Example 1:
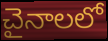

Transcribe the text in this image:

చైనాలలో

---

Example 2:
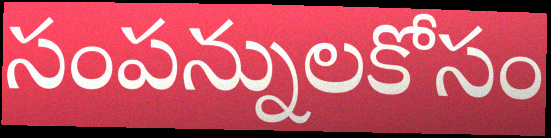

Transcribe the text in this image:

సంపన్నులకోసం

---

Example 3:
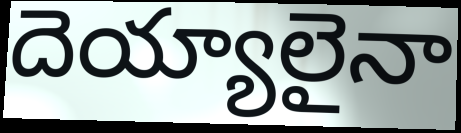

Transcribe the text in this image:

దెయ్యాలైనా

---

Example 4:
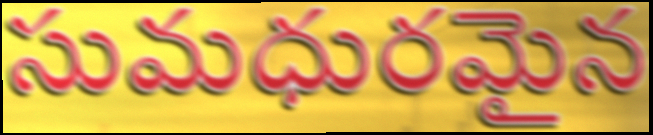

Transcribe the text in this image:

సుమధురమైన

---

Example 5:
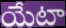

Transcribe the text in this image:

యేటా